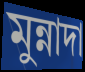
মুন্নাদা